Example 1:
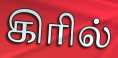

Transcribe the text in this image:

கிரில்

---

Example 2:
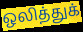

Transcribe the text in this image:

ஒலித்துக்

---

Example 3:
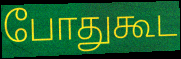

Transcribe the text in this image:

போதுகூட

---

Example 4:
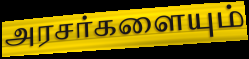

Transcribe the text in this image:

அரசர்களையும்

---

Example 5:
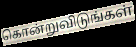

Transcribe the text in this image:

கொன்றுவிடுங்கள்